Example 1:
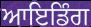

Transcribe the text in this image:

ਆਇਡਿੰਗ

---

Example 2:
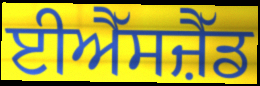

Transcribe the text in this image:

ਈਐੱਸਜ਼ੈੱਡ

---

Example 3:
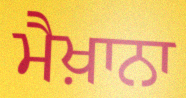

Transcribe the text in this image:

ਮੈਖ਼ਾਨਾ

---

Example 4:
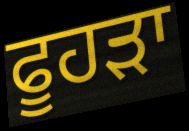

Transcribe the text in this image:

ਫੂਹੜਾ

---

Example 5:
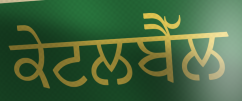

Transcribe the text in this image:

ਕੇਟਲਬੈੱਲ